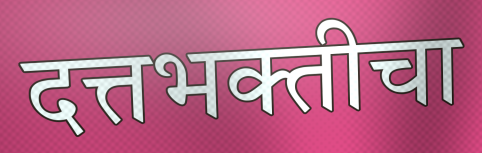
दत्तभक्तीचा